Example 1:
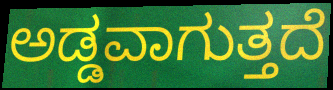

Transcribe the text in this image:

ಅಡ್ಡವಾಗುತ್ತದೆ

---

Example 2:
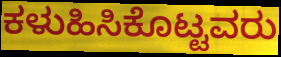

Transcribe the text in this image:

ಕಳುಹಿಸಿಕೊಟ್ಟವರು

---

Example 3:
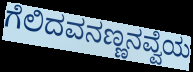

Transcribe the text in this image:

ಗೆಲಿದವನಣ್ಣನವ್ವೆಯ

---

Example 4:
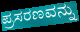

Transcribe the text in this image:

ಪ್ರಸರಣವನ್ನು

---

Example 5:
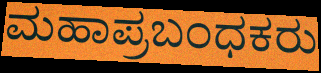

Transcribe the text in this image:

ಮಹಾಪ್ರಬಂಧಕರು